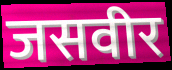
जसवीर